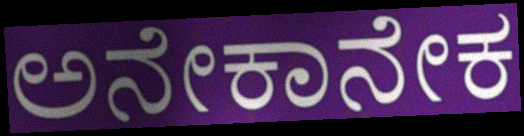
ಅನೇಕಾನೇಕ